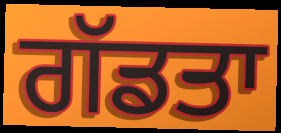
ਗੱਡਤਾ